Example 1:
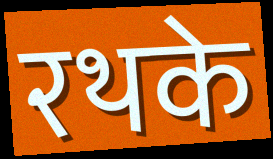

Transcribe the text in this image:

रथके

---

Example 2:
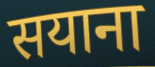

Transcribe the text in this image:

सयाना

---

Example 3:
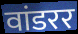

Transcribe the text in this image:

वांडरर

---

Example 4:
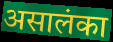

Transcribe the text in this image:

असालंका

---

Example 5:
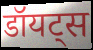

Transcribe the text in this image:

डॉयट्स